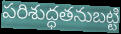
పరిశుద్ధతనుబట్టి